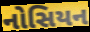
નોસિયન